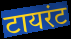
टायरंट